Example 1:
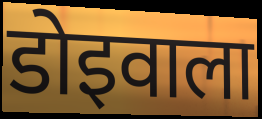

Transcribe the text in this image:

डोइवाला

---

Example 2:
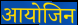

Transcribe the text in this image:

आयोजिन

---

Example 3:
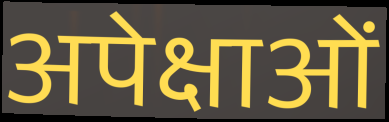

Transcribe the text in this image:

अपेक्षाओं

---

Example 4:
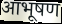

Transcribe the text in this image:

आभूषण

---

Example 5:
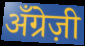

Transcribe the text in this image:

अँग्रेज़ी